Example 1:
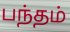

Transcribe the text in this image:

பந்தம்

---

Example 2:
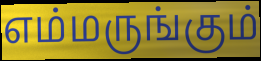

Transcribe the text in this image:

எம்மருங்கும்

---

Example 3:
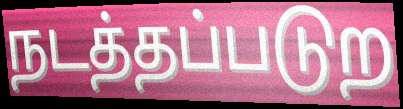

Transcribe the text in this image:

நடத்தப்படுற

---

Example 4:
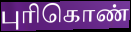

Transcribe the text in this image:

புரிகொண்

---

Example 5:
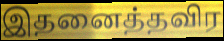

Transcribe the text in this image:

இதனைத்தவிர